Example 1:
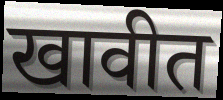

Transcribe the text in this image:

खावीत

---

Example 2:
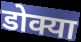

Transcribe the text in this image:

डोक्या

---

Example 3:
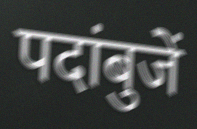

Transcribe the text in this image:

पदांबुजें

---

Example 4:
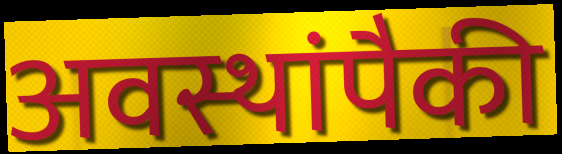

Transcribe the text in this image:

अवस्थांपैकी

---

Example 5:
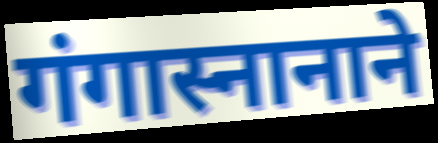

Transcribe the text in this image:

गंगास्नानाने